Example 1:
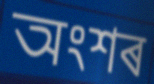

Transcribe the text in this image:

অংশৰ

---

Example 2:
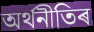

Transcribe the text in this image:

অৰ্থনীতিৰ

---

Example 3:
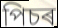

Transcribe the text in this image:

পিচৰ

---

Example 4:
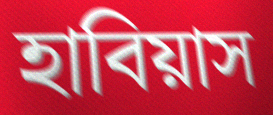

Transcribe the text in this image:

হাবিয়াস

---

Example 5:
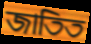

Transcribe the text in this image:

জাতিত